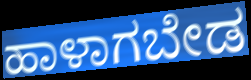
ಹಾಳಾಗಬೇಡ